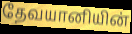
தேவயானியின்